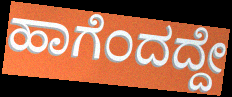
ಹಾಗೆಂದದ್ದೇ